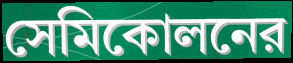
সেমিকোলনের